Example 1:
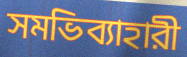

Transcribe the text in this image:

সমভিব্যাহারী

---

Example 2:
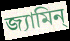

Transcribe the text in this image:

জ্যামিন্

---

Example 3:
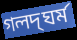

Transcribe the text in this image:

গলদ্‌ঘর্ম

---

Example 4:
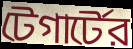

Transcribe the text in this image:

টেগার্টের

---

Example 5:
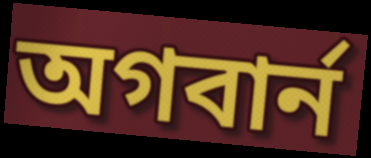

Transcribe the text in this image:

অগবার্ন